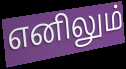
எனிலும்